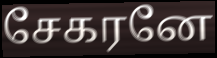
சேகரனே